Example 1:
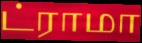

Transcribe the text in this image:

ட்ராமா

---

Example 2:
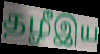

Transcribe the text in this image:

தழீஇய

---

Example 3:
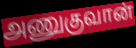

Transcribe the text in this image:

அணுகுவான்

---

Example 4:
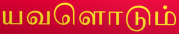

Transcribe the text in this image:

யவளொடும்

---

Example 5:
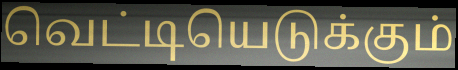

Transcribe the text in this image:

வெட்டியெடுக்கும்